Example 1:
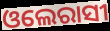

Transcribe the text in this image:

ଓଲେରାସୀ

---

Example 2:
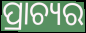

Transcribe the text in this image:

ପ୍ରାଚ୍ୟର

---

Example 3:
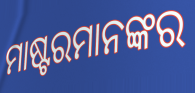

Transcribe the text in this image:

ମାଷ୍ଟରମାନଙ୍କର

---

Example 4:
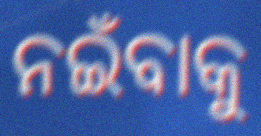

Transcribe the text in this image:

ନଇଁବାକୁ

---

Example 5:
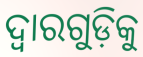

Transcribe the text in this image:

ଦ୍ୱାରଗୁଡ଼ିକୁ